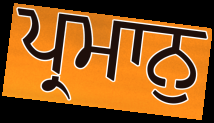
ਪ੍ਰਮਾਨੁ